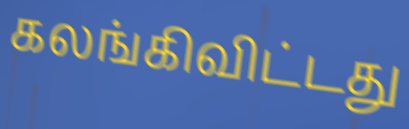
கலங்கிவிட்டது